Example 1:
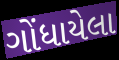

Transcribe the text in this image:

ગોંધાયેલા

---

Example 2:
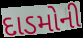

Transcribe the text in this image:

દાડમોની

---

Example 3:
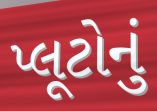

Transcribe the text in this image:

પ્લૂટોનું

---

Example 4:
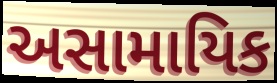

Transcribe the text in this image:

અસામાયિક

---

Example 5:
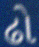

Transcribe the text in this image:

ઢો